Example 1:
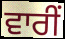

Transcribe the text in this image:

ਵਾਰੀਂ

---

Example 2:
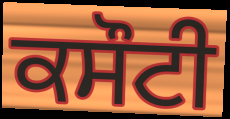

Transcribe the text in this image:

ਕਸੌਟੀ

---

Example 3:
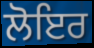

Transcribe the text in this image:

ਲੋਇਰ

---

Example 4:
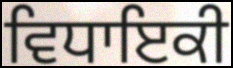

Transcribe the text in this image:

ਵਿਧਾਇਕੀ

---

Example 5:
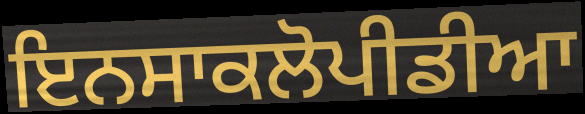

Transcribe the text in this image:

ਇਨਸਾਕਲੋਪੀਡੀਆ